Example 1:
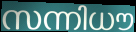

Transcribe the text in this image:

സന്നിധൗ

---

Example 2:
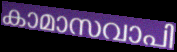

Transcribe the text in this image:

കാമാസവാപി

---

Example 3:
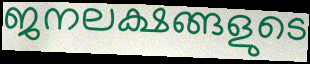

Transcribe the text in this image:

ജനലക്ഷങ്ങളുടെ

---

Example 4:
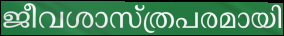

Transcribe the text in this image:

ജീവശാസ്ത്രപരമായി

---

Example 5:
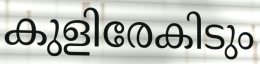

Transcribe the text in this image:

കുളിരേകിടും